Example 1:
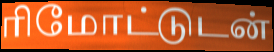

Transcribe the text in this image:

ரிமோட்டுடன்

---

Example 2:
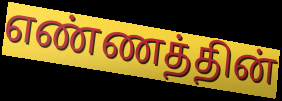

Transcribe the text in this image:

எண்ணத்தின்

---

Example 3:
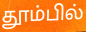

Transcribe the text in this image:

தூம்பில்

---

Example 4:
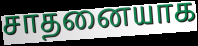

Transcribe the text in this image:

சாதனையாக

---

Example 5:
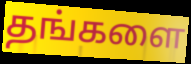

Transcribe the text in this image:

தங்களை